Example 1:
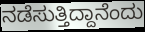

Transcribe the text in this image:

ನಡೆಸುತ್ತಿದ್ದಾನೆಂದು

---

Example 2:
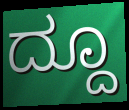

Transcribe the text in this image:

ದ್ದೂ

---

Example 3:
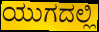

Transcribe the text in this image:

ಯುಗದಲ್ಲಿ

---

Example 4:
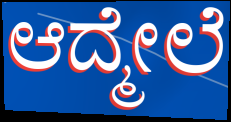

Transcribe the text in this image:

ಆದ್ಮೇಲೆ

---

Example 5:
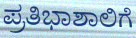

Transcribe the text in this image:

ಪ್ರತಿಭಾಶಾಲಿಗೆ